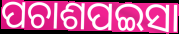
ପଚାଶପଇସା